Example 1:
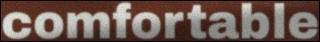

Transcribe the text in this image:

comfortable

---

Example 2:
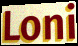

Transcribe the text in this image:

Loni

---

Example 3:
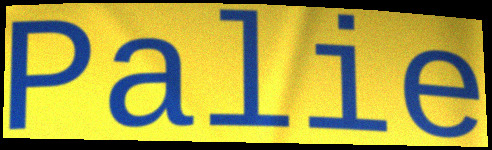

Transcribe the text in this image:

Palie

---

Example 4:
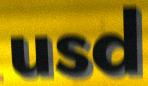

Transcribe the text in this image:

usd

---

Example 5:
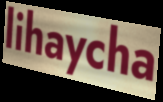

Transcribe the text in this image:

lihaycha